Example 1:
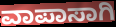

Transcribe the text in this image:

ವಾಪಾಸಾಗಿ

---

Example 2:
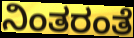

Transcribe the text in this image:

ನಿಂತರಂತೆ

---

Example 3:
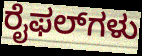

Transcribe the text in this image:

ರೈಫಲ್‌ಗಳು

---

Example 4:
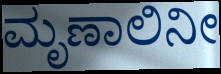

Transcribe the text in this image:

ಮೃಣಾಲಿನೀ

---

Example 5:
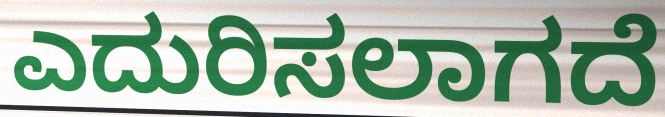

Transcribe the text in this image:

ಎದುರಿಸಲಾಗದೆ